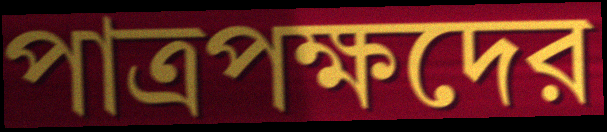
পাত্রপক্ষদের